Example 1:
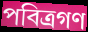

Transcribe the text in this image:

পবিত্রগণ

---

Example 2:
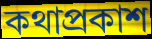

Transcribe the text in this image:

কথাপ্রকাশ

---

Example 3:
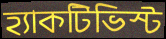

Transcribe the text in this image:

হ্যাকটিভিস্ট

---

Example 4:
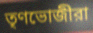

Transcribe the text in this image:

তৃণভোজীরা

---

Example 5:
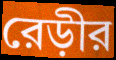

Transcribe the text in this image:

রেড়ীর